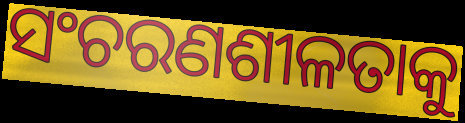
ସଂଚରଣଶୀଳତାକୁ